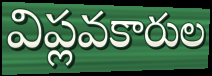
విప్లవకారుల